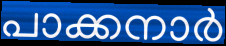
പാക്കനാർ